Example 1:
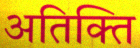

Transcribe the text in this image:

अतिक्ति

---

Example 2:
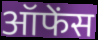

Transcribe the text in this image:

ऑफेंस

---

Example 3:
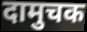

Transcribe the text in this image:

दामुचक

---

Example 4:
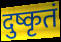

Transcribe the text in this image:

दुष्कृतं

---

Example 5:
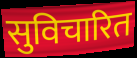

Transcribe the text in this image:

सुविचारित